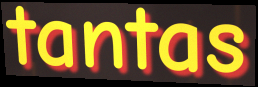
tantas